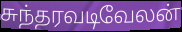
சுந்தரவடிவேலன்